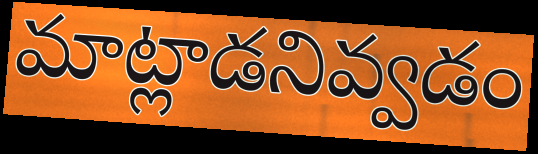
మాట్లాడనివ్వడం